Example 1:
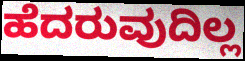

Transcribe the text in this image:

ಹೆದರುವುದಿಲ್ಲ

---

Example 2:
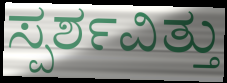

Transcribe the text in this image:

ಸ್ಪರ್ಶವಿತ್ತು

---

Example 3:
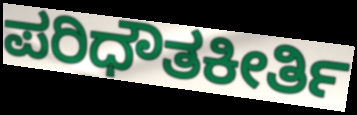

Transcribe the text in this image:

ಪರಿಧೌತಕೀರ್ತಿ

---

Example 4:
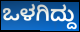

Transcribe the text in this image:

ಒಳಗಿದ್ದು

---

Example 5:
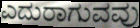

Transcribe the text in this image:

ಎದುರಾಗುವವು